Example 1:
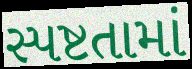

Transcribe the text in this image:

સ્પષ્ટતામાં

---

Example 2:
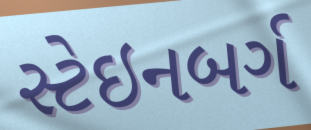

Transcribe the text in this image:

સ્ટેઇનબર્ગ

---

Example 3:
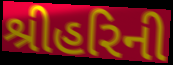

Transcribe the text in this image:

શ્રીહરિની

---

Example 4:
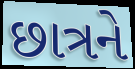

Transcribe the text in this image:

છાત્રને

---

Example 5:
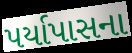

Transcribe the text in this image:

પર્યાપાસના